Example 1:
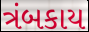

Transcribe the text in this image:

ત્રંબકાય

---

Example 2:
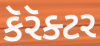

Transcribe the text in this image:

કૅરૅક્ટર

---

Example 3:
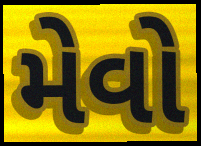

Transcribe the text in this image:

મેવો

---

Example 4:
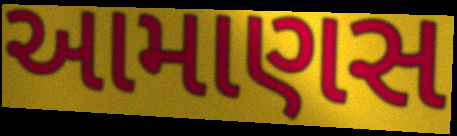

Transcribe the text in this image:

આમાણસ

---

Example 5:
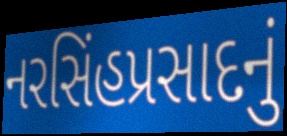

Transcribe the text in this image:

નરસિંહપ્રસાદનું